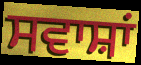
ਸਵਾਸ਼ਾਂ